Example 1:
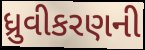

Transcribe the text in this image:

ધ્રુવીકરણની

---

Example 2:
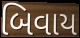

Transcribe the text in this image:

બિવાય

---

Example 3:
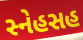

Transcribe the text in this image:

સ્નેહસહ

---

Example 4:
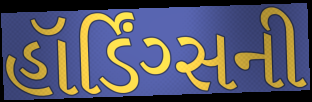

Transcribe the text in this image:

હૉર્ડિંગ્સની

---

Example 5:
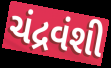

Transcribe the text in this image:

ચંદ્રવંશી